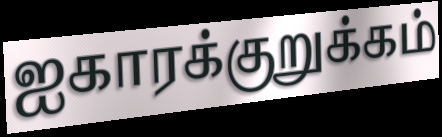
ஐகாரக்குறுக்கம்